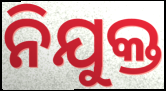
ନିଯୁକ୍ତ